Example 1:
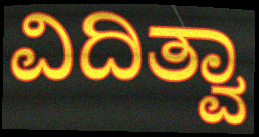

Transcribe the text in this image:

ವಿದಿತ್ವಾ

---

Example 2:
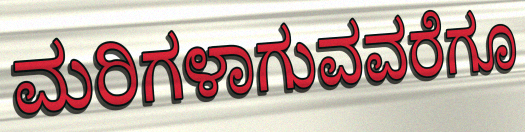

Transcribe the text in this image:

ಮರಿಗಳಾಗುವವರೆಗೂ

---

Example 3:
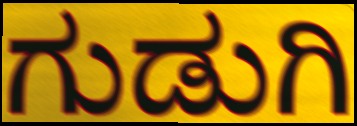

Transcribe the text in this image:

ಗುಡುಗಿ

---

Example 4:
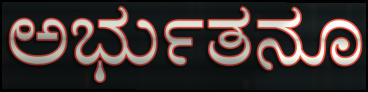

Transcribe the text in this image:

ಅರ್ಭುತನೂ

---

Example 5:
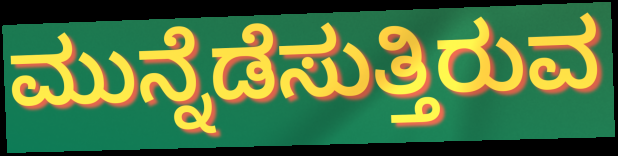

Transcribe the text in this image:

ಮುನ್ನೆಡೆಸುತ್ತಿರುವ